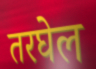
तरघेल